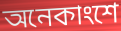
অনেকাংশে